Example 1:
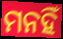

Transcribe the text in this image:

ମନହିଁ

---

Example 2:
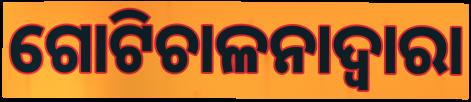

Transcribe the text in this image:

ଗୋଟିଚାଳନାଦ୍ୱାରା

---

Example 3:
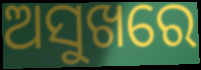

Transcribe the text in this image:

ଅସୁଖରେ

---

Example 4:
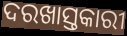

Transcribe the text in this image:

ଦରଖାସ୍ତକାରୀ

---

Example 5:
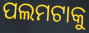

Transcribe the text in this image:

ପଲମଟାକୁ